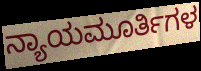
ನ್ಯಾಯಮೂರ್ತಿಗಳ